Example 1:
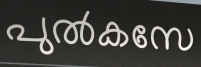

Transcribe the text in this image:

പുൽകസേ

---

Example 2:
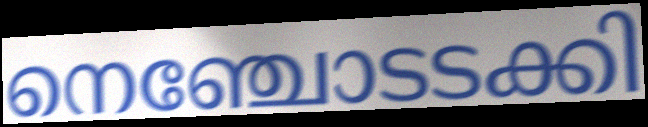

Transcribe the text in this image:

നെഞ്ചോടടക്കി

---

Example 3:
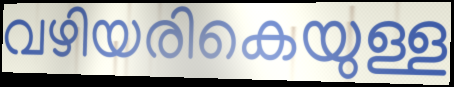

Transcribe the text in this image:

വഴിയരികെയുള്ള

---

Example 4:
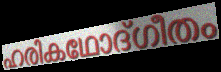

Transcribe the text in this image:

ഹരികഥോദ്ഗീതം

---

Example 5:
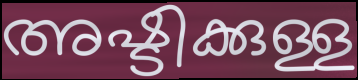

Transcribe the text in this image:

അഷ്ടിക്കുള്ള